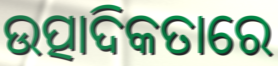
ଉତ୍ପାଦିକତାରେ